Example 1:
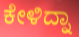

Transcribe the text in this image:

ಕೇಳಿದ್ನಾ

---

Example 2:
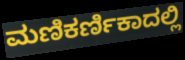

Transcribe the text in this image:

ಮಣಿಕರ್ಣಿಕಾದಲ್ಲಿ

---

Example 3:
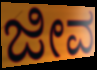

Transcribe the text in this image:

ಜೀವ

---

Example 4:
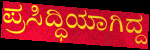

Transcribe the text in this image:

ಪ್ರಸಿದ್ಧಿಯಾಗಿದ್ದ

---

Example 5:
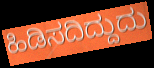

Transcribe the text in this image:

ಹಿಡಿಸದಿದ್ದುದು